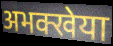
अभक्खेया